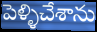
పెళ్ళిచేశాను